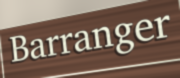
Barranger